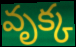
వృక్క